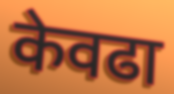
केवढा